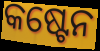
କଷ୍ଟେନ